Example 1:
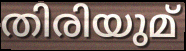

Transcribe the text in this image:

തിരിയുമ്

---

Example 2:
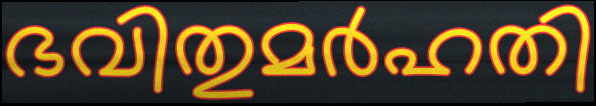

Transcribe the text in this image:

ഭവിതുമർഹതി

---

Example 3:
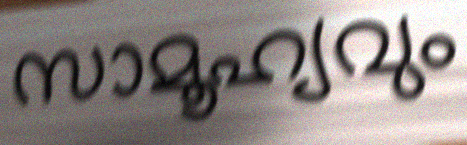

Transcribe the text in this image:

സാമൂഹ്യവും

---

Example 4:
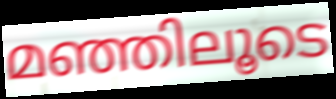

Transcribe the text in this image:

മഞ്ഞിലൂടെ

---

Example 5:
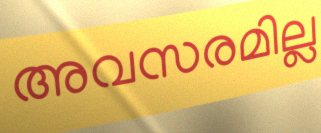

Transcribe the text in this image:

അവസരമില്ല